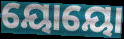
ୟୋୟୋ